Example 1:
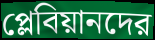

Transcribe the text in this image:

প্লেবিয়ানদের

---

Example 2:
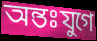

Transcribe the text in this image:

অন্তঃযুগে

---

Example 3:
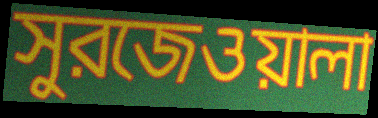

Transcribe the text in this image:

সুরজেওয়ালা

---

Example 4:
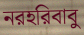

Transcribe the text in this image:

নরহরিবাবু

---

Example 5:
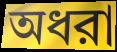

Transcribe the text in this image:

অধরা